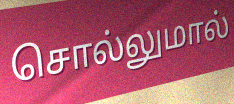
சொல்லுமால்